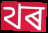
থৰ